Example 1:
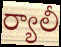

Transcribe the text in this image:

ర్యాలీ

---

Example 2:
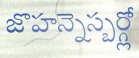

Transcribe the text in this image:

జొహన్నెస్బర్గ్లో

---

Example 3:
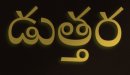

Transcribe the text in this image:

డుత్తర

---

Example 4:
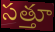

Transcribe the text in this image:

సత్తూ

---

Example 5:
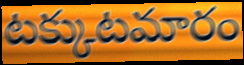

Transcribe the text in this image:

టక్కుటమారం